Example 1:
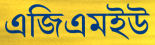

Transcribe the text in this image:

এজিএমইউ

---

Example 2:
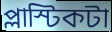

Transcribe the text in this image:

প্লাস্টিকটা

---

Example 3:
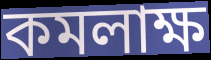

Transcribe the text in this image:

কমলাক্ষ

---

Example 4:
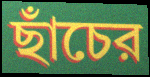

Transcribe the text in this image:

ছাঁচের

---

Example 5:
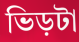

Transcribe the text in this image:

ভিড়টা